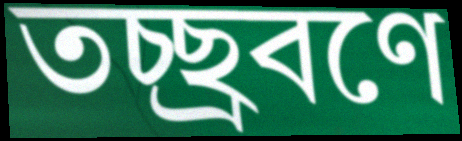
তচ্ছ্রবণে